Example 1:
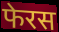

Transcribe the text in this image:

फेरस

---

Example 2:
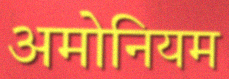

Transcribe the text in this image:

अमोनियम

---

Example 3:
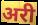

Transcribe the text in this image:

अरी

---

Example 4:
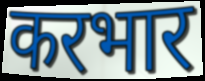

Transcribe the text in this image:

करभार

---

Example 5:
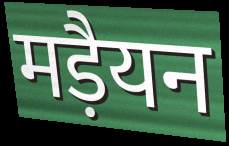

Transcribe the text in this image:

मड़ैयन